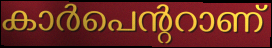
കാർപെന്ററാണ്